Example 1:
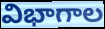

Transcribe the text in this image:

విభాగాల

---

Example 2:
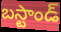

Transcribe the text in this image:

బస్టాండ్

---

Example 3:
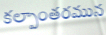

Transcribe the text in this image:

కల్పాంతరమున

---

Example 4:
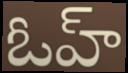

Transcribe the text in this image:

ఓహ్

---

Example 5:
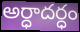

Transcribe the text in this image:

అర్ధాదర్ధం